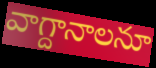
వాగ్దానాలనూ